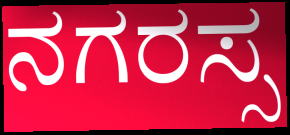
ನಗರಸ್ಸ